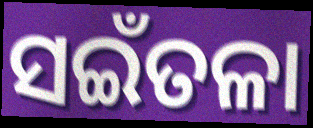
ସଇଁତଳା